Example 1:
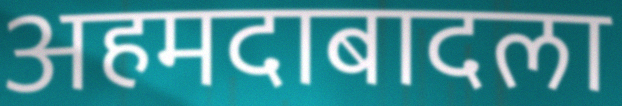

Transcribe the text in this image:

अहमदाबादला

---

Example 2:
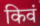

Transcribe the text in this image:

किवं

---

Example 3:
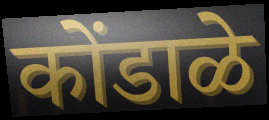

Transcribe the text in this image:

कोंडाळे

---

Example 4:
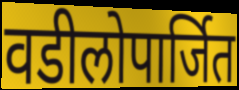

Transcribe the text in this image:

वडीलोपार्जित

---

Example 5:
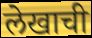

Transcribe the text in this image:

लेखाची